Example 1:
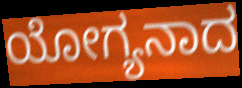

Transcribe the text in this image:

ಯೋಗ್ಯನಾದ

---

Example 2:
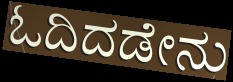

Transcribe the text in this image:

ಓದಿದಡೇನು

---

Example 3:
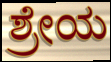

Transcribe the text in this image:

ಶ್ರೇಯ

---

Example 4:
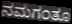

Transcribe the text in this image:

ನಮಗಂತೂ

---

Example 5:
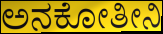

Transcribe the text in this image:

ಅನಕೋತೀನಿ